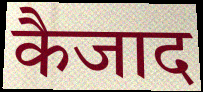
कैजाद